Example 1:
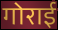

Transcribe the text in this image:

गोराई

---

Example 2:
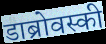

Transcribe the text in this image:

डाब्रोवस्की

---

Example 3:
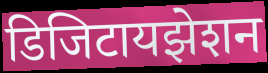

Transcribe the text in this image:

डिजिटायझेशन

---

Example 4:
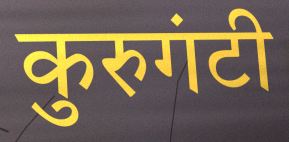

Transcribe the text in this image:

कुरुगंटी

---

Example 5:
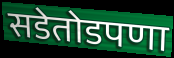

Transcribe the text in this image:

सडेतोडपणा